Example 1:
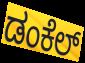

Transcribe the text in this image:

ಡಂಕೆಲ್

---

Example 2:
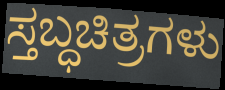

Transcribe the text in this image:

ಸ್ತಬ್ಧಚಿತ್ರಗಳು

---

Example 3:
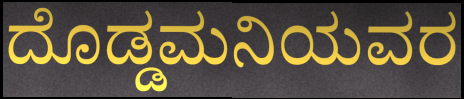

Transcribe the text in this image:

ದೊಡ್ಡಮನಿಯವರ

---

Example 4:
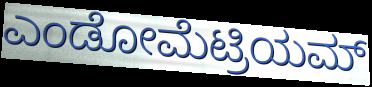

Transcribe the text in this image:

ಎಂಡೋಮೆಟ್ರಿಯಮ್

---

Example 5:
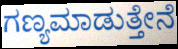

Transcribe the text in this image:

ಗಣ್ಯಮಾಡುತ್ತೇನೆ